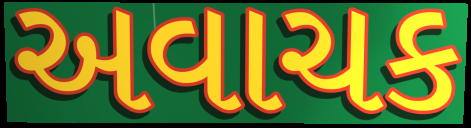
અવાચક